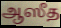
ஆஸீத